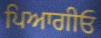
ਪਿਆਗੀਓ